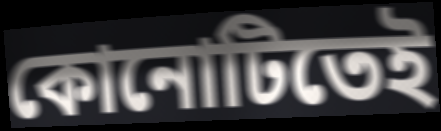
কোনোটিতেই